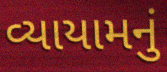
વ્યાયામનું